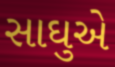
સાઘુએ